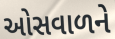
ઓસવાળને